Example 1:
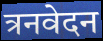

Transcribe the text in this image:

त्रनवेदन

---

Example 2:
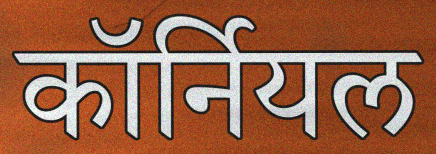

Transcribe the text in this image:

कॉर्नियल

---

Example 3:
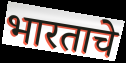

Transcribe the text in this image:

भारताचे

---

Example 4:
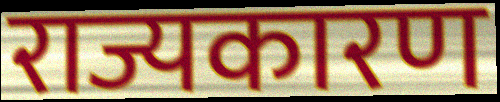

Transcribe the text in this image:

राज्यकारण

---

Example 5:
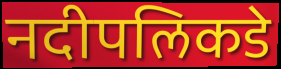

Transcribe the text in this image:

नदीपलिकडे